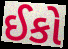
ઈકો